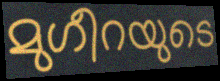
മുഗീറയുടെ